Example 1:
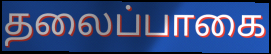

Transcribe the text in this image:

தலைப்பாகை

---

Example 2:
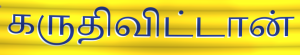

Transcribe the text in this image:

கருதிவிட்டான்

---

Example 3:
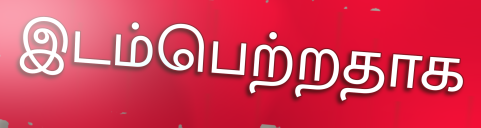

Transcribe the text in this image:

இடம்பெற்றதாக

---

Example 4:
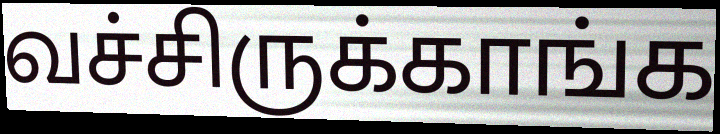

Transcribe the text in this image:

வச்சிருக்காங்க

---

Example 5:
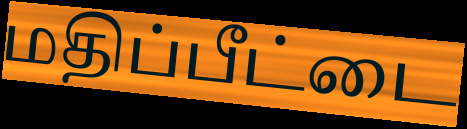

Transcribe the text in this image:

மதிப்பீட்டை